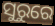
ସୁରୁରେ